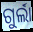
ଗୁର୍ଲା